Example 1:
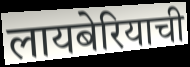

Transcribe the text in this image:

लायबेरियाची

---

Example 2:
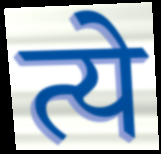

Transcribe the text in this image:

त्ये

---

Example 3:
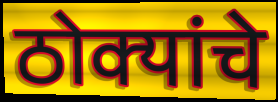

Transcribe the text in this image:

ठोक्यांचे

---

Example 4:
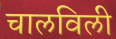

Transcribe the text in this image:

चालविली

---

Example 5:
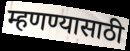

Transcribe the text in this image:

म्हणण्यासाठी